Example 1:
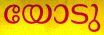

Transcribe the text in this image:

യോടു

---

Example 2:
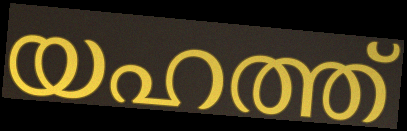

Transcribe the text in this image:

യഹത്ത്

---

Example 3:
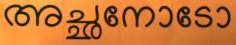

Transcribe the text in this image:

അച്ഛനോടോ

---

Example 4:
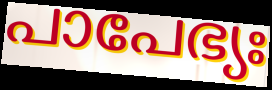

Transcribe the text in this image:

പാപേഭ്യഃ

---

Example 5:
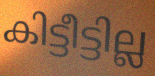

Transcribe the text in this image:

കിട്ടീട്ടില്ല